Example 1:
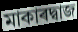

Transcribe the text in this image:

মাকাৰদ্বাজ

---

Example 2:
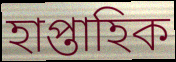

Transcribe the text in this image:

হাপ্তাহিক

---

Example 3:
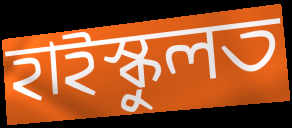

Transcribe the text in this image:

হাইস্কুলত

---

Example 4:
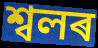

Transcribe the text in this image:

শ্বলৰ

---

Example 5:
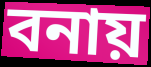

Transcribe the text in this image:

বনায়